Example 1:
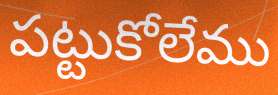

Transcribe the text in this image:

పట్టుకోలేము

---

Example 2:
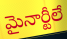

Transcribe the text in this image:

మైనార్టీలే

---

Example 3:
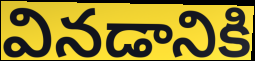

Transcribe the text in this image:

వినడానికి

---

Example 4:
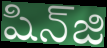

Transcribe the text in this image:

షిన్‌జి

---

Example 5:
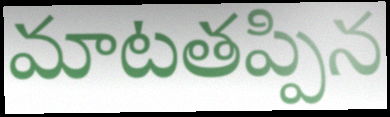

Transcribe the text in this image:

మాటతప్పిన